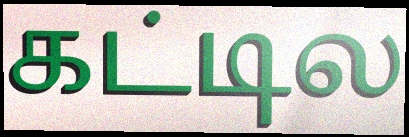
கட்டில